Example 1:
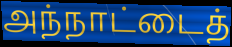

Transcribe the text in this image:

அந்நாட்டைத்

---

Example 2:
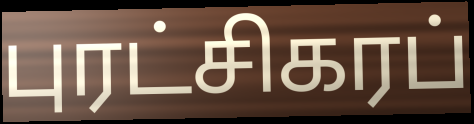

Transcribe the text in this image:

புரட்சிகரப்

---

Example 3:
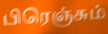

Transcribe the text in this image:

பிரெஞ்சும்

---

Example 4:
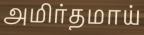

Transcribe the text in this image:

அமிர்தமாய்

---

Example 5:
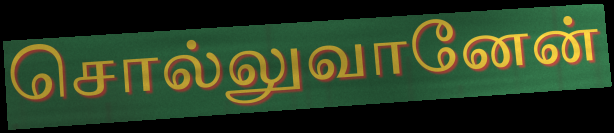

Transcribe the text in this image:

சொல்லுவானேன்